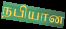
நபியான